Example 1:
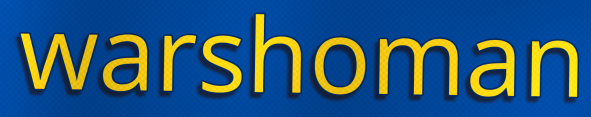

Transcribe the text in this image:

warshoman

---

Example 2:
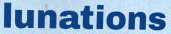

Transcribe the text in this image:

lunations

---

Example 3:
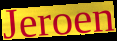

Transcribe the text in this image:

Jeroen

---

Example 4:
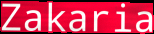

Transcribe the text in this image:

Zakaria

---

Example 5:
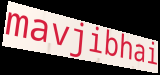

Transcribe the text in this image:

mavjibhai